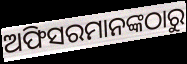
ଅଫିସରମାନଙ୍କଠାରୁ